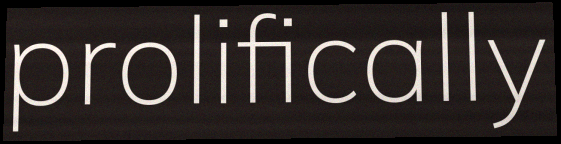
prolifically